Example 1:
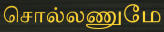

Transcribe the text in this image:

சொல்லணுமே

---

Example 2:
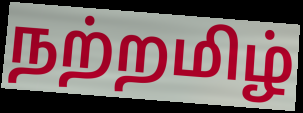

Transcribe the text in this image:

நற்றமிழ்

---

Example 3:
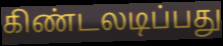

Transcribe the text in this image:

கிண்டலடிப்பது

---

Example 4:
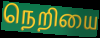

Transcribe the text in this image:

நெறியை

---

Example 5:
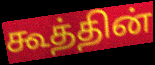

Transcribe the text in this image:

கூத்தின்